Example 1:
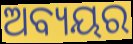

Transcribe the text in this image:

ଅବ୍ୟୟର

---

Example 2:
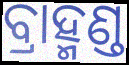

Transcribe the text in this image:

ବ୍ରାହ୍ମଣ୍ଡ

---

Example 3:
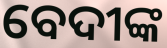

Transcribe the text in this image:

ବେଦୀଙ୍କ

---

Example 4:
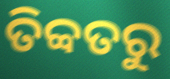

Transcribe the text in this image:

ତିବ୍ବତରୁ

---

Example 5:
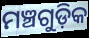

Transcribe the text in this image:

ମଞ୍ଚଗୁଡ଼ିକ